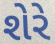
શેરે